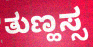
ತುಣ್ಹಸ್ಸ